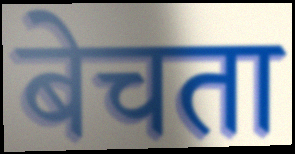
बेचता